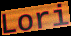
Lori